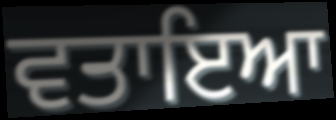
ਵਤਾਇਆ